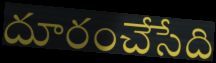
దూరంచేసేది